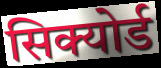
सिक्‍योर्ड